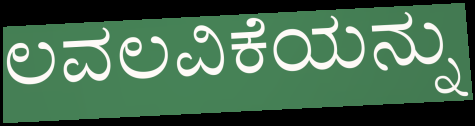
ಲವಲವಿಕೆಯನ್ನು